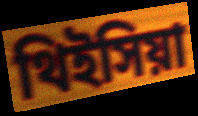
থিইসিয়া